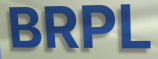
BRPL